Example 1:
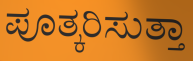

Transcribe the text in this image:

ಪೂತ್ಕರಿಸುತ್ತಾ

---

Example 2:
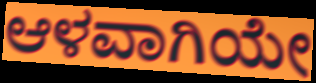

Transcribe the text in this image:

ಆಳವಾಗಿಯೇ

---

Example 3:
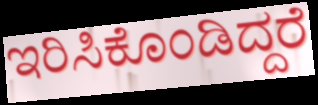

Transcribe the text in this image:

ಇರಿಸಿಕೊಂಡಿದ್ದರೆ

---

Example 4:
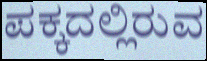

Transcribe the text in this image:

ಪಕ್ಕದಲ್ಲಿರುವ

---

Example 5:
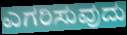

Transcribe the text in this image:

ಎಗರಿಸುವುದು